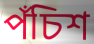
পঁচিশ